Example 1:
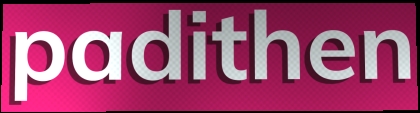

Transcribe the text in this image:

padithen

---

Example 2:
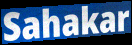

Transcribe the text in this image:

Sahakar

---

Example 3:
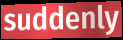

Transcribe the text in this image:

suddenly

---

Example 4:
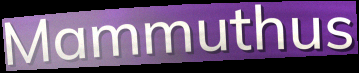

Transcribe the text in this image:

Mammuthus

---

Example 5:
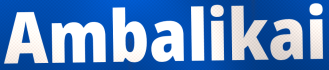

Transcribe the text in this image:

Ambalikai